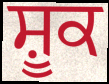
ਸ਼ੂਕ